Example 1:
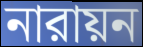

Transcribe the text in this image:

নারায়ন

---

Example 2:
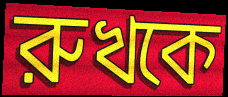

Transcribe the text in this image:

রুখকে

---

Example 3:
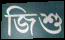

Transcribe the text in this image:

জিশু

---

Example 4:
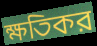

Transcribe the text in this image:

ক্ষতিকর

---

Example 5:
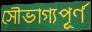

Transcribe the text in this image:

সৌভাগ্যপূর্ণ